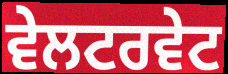
ਵੇਲਟਰਵੇਟ